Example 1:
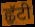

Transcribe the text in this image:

ਛੁੱਟੀ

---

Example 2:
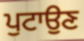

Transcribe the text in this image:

ਪੁਟਾਉਣ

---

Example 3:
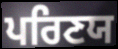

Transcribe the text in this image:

ਪਰਿਣਯ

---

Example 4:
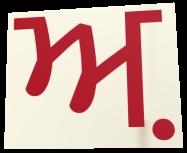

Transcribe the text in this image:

ਅ਼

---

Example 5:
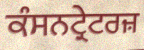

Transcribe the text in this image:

ਕੰਸਨਟ੍ਰੇਟਰਜ਼